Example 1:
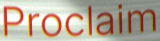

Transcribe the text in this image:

Proclaim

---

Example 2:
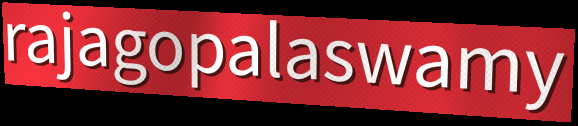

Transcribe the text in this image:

rajagopalaswamy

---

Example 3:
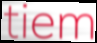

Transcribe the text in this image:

tiem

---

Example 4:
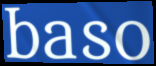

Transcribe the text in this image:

baso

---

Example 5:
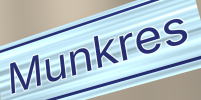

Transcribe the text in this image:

Munkres